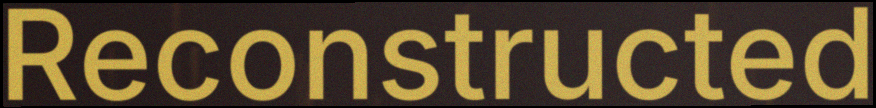
Reconstructed